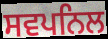
ਸਵਪਨਿਲ